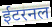
ईटरनल